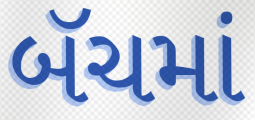
બૅચમાં